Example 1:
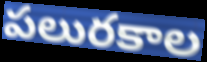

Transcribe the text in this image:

పలురకాల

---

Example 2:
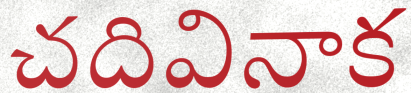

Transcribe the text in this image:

చదివినాక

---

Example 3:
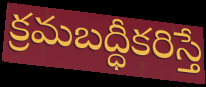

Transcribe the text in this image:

క్రమబద్ధీకరిస్తే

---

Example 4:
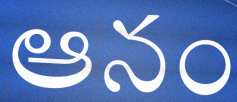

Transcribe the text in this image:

ఆనం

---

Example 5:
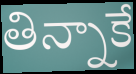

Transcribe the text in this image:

తిన్నాకే